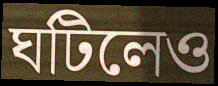
ঘটিলেও